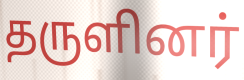
தருளினர்